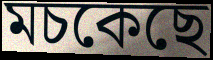
মচকেছে